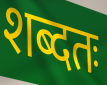
शब्दतः